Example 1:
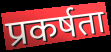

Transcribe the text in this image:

प्रकर्षता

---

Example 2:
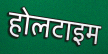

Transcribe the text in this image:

होलटाइम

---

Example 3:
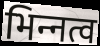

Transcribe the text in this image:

भिन्नत्व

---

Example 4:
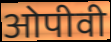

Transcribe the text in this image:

ओपीवी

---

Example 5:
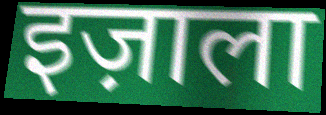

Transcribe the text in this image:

इज़ाला